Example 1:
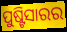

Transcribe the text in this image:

ପୁଷ୍ଟିସାରର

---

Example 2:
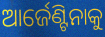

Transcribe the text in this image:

ଆର୍ଜେଣ୍ଟିନାକୁ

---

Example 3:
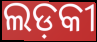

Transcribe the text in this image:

ଲଡ଼କୀ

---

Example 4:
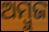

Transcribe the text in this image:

ଅମ୍ବୁଜ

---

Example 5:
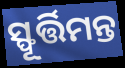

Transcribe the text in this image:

ସ୍ଫୂର୍ତ୍ତିମନ୍ତ